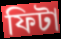
ফিটা